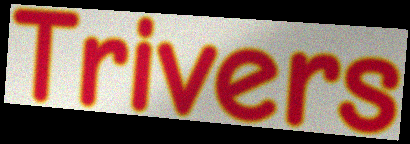
Trivers